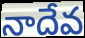
నాదేవ